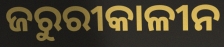
ଜରୁରୀକାଳୀନ